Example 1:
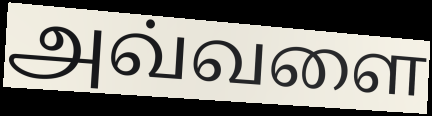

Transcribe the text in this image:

அவ்வளை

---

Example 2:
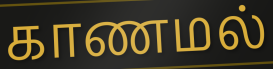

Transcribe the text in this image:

காணமல்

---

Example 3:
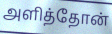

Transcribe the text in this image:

அளித்தோன்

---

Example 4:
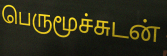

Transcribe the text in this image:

பெருமூச்சுடன்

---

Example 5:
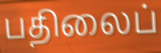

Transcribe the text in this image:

பதிலைப்